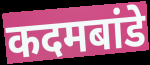
कदमबांडे